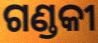
ଗଣ୍ଡକୀ